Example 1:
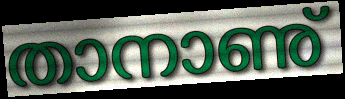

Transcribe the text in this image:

താനാണു്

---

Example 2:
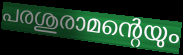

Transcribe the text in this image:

പരശുരാമന്റെയും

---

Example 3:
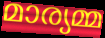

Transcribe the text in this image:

മാര്യമ്മ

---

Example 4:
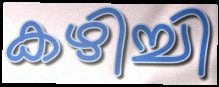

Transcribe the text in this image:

കഴിച്ചി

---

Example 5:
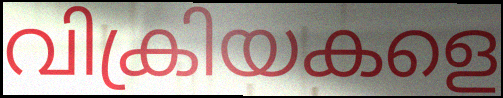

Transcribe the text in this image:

വിക്രിയകളെ